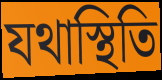
যথাস্থিতি